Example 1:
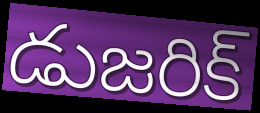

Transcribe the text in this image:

డుజరిక్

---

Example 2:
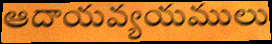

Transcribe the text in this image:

ఆదాయవ్యయములు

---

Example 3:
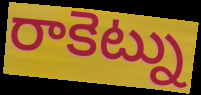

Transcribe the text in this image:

రాకెట్ను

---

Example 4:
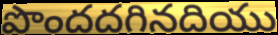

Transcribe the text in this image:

పొందదగినదియు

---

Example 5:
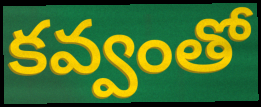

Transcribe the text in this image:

కవ్వంతో